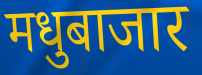
मधुबाजार